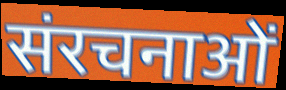
संरचनाओं